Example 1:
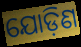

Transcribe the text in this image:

ଯୋଡ଼ିଣ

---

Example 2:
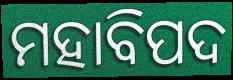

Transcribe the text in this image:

ମହାବିପଦ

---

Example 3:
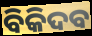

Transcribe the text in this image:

ବିକିଦବ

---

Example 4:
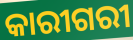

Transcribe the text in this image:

କାରୀଗରୀ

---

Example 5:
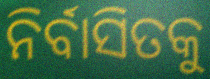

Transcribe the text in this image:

ନିର୍ବାସିତକୁ